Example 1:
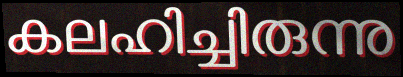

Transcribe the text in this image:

കലഹിച്ചിരുന്നു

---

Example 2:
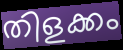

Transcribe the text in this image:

തിളക്കം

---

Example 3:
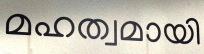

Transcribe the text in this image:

മഹത്വമായി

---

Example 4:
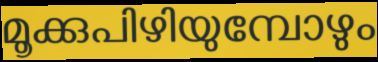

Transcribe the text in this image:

മൂക്കുപിഴിയുമ്പോഴും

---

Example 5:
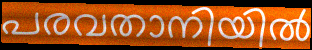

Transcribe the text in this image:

പരവതാനിയിൽ